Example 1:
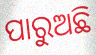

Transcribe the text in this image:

ପାରୁଅଛି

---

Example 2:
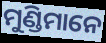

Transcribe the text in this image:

ମୁଣ୍ଡିମାନେ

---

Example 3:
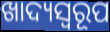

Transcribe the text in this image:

ଖାଦ୍ୟସ୍ୱରୂପ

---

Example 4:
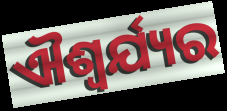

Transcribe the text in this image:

ଐଶ୍ୱର୍ଯ୍ୟର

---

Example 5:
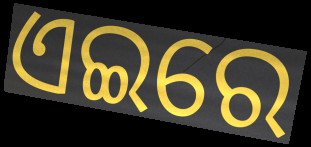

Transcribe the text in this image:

ଏଇରେ